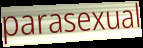
parasexual